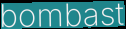
bombast